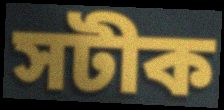
সটীক